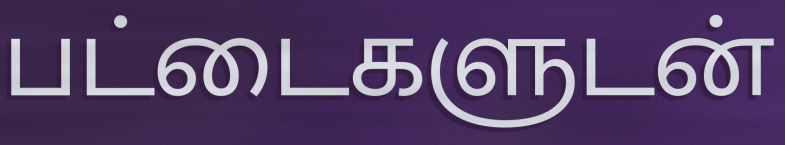
பட்டைகளுடன்